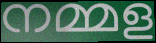
നമ്മള